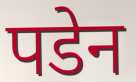
पडेन